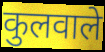
कुलवाले